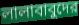
লালাবাবুদের